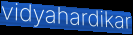
vidyahardikar